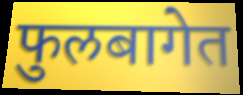
फुलबागेत